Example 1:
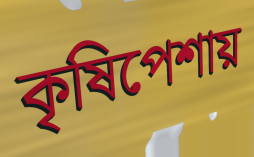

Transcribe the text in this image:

কৃষিপেশায়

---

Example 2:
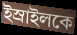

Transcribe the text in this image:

ইস্রাইলকে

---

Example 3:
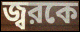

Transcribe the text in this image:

জ্বরকে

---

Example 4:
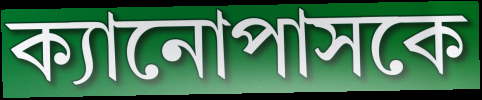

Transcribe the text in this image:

ক্যানোপাসকে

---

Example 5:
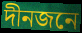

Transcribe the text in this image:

দীনজনে